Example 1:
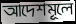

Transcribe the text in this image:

আদেশমূলে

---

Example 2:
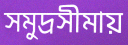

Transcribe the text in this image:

সমুদ্রসীমায়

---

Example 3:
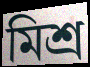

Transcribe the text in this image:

মিশ্র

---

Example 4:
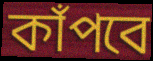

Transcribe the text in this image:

কাঁপবে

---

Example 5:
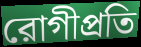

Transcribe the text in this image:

রোগীপ্রতি